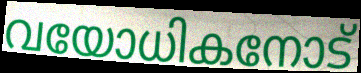
വയോധികനോട്